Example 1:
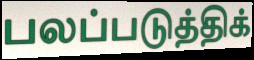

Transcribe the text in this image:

பலப்படுத்திக்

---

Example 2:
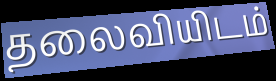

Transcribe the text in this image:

தலைவியிடம்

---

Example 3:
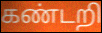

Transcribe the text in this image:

கண்டறி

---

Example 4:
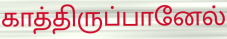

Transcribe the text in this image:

காத்திருப்பானேல்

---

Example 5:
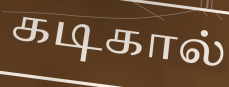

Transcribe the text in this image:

கடிகால்